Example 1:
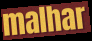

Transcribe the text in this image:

malhar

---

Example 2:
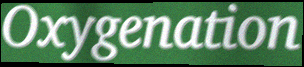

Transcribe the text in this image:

Oxygenation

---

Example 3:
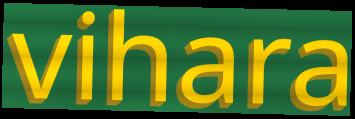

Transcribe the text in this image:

vihara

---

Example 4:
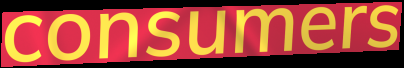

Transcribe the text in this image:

consumers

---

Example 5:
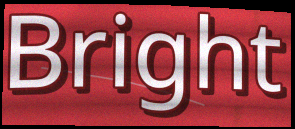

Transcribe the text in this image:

Bright